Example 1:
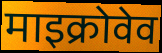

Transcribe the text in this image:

माइक्रोवेव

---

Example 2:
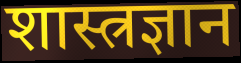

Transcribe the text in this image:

शास्त्रज्ञान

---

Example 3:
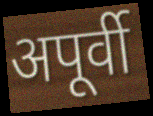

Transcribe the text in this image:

अपूर्वी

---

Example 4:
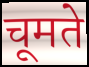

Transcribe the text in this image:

चूमते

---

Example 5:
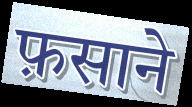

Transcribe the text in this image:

फ़साने